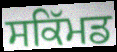
ਸਕਿੱਮਡ